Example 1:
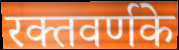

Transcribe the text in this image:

रक्तवर्णके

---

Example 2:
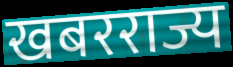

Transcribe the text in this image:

खबरराज्य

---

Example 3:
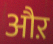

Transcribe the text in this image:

औऱ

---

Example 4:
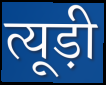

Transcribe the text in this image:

त्यूड़ी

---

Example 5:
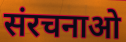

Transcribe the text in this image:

संरचनाओ